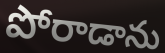
పోరాడాను